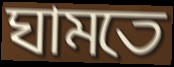
ঘামতে